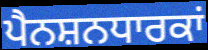
ਪੈਨਸ਼ਨਧਾਰਕਾਂ